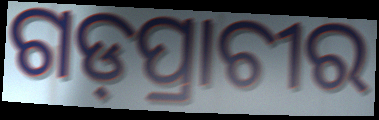
ଗଡ଼ପ୍ରାଚୀର